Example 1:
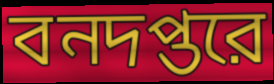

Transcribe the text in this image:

বনদপ্তরে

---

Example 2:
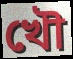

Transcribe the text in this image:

খৌ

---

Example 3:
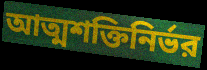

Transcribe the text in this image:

আত্মশক্তিনির্ভর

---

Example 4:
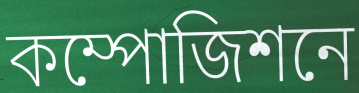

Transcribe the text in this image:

কম্পোজিশনে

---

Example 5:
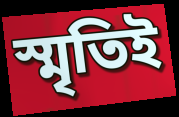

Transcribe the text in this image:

স্মৃতিই